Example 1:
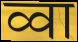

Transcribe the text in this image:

व्वा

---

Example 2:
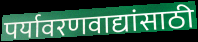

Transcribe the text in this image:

पर्यावरणवाद्यांसाठी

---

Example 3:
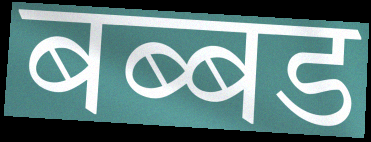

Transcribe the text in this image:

बब्बड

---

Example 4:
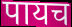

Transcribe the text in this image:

पायच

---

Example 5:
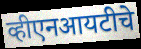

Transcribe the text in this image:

व्हीएनआयटीचे